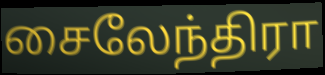
சைலேந்திரா